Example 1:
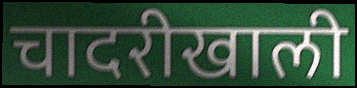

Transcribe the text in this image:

चादरीखाली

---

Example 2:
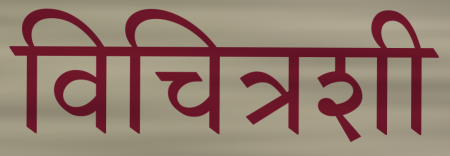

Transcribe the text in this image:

विचित्रशी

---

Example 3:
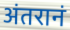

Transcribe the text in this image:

अंतरानं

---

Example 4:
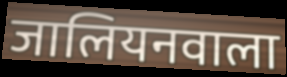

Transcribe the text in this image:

जालियनवाला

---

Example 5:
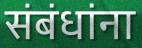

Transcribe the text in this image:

संबंधांना